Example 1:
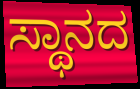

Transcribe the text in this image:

ಸ್ಥಾನದ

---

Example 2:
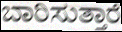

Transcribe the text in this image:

ಬಾರಿಸುತ್ತಾರೆ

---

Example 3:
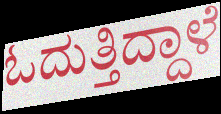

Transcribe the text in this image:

ಓದುತ್ತಿದ್ದಾಳೆ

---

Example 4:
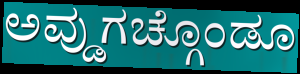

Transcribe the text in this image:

ಅವ್ಡುಗಚ್ಗೊಂಡೂ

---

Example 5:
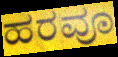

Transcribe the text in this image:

ಹರವೂ